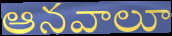
ఆనవాలూ